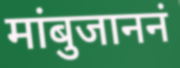
मांबुजाननं